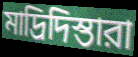
মাদ্রিদিস্তারা